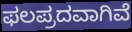
ಫಲಪ್ರದವಾಗಿವೆ